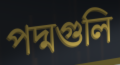
পদ্মগুলি